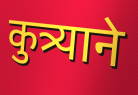
कुत्र्याने